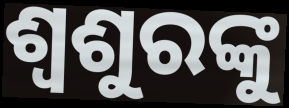
ଶ୍ୱଶୁରଙ୍କୁ